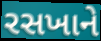
રસખાને